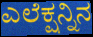
ಎಲೆಕ್ಷನ್ನಿನ